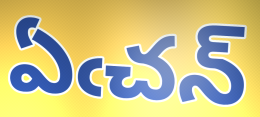
ఏఁచన్